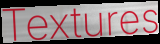
Textures